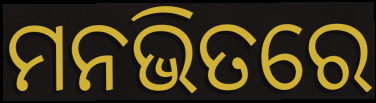
ମନଭିତରେ